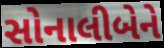
સોનાલીબેને